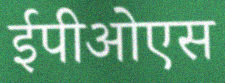
ईपीओएस